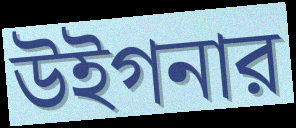
উইগনার